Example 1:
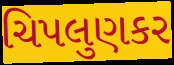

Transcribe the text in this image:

ચિપલુણકર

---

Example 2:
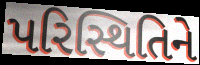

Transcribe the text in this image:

પરિસ્થિતિને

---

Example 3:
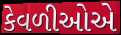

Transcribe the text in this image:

કેવળીઓએ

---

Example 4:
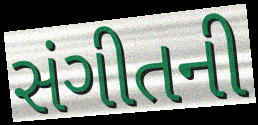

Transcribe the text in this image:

સંગીતની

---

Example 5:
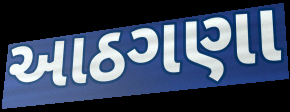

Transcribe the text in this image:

આઠગણા